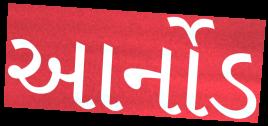
આર્નોડ